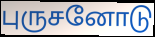
புருசனோடு